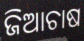
ଜିଆଚାଷ